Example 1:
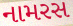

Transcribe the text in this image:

નામરસ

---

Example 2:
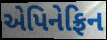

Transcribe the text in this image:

એપિનેફ્રિન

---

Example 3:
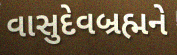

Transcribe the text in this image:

વાસુદેવબ્રહ્મને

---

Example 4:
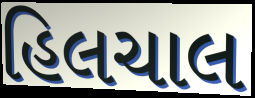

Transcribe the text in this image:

હિલચાલ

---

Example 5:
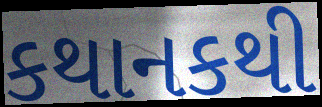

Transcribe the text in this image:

કથાનકથી